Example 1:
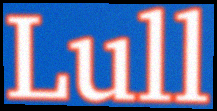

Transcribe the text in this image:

Lull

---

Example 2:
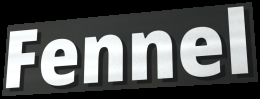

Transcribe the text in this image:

Fennel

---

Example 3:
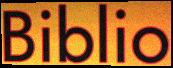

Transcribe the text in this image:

Biblio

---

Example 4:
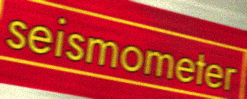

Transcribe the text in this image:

seismometer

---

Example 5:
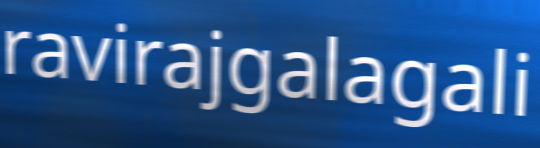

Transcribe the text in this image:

ravirajgalagali